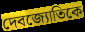
দেবজ্যোতিকে